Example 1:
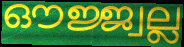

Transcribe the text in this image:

ഔജ്ജ്വല്ല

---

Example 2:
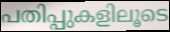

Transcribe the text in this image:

പതിപ്പുകളിലൂടെ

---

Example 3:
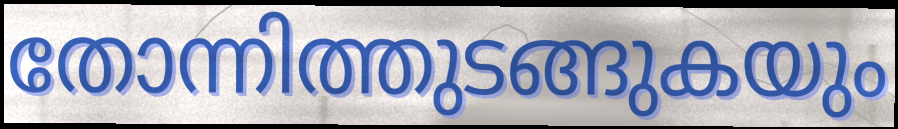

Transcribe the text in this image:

തോന്നിത്തുടങ്ങുകയും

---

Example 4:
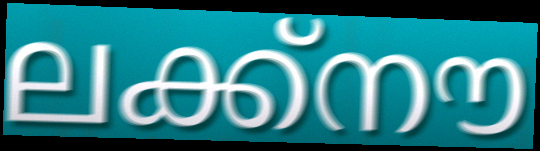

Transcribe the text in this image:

ലക്ക്നൗ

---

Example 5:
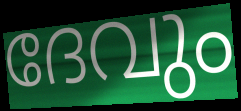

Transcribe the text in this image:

ദേവും